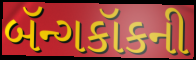
બૅન્ગકૉકની